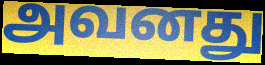
அவனது